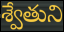
శ్వేతుని